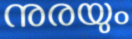
നുരയും